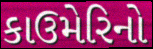
કાઉમેરિનો